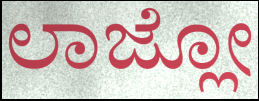
ಲಾಜ್ಲೋ